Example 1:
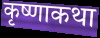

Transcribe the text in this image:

कृष्णाकथा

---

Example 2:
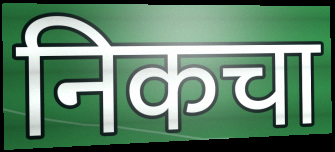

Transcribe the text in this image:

निकचा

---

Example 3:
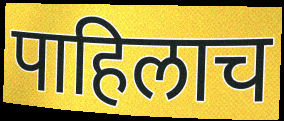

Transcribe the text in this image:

पाहिलाच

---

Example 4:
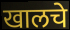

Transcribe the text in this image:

खालचे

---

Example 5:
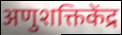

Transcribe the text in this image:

अणुशक्तिकेंद्र